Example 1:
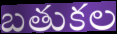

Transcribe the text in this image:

బతుకల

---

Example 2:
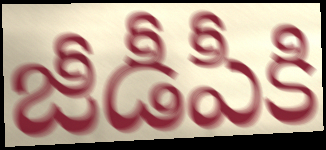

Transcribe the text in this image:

జీడీపీకి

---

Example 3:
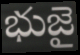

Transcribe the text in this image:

భుజై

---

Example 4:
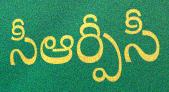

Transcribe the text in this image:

సీఆర్పీసీ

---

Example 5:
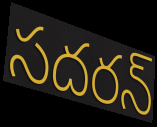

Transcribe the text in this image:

సదరన్